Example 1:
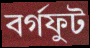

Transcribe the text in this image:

বৰ্গফুট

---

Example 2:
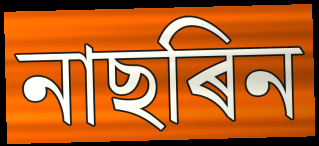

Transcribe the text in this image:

নাছৰিন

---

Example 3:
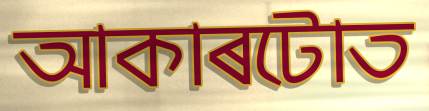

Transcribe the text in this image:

আকাৰটোত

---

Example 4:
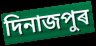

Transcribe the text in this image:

দিনাজপুৰ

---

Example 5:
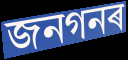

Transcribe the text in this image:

জনগনৰ